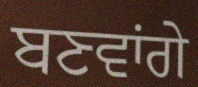
ਬਣਵਾਂਗੇ